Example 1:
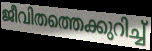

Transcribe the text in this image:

ജീവിതത്തെക്കുറിച്ച്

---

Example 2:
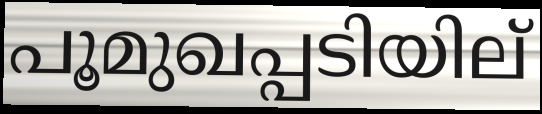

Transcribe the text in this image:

പൂമുഖപ്പടിയില്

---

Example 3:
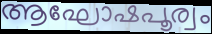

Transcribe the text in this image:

ആഘോഷപൂര്വം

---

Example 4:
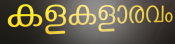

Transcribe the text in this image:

കളകളാരവം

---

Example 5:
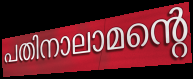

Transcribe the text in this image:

പതിനാലാമന്റെ